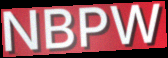
NBPW